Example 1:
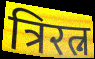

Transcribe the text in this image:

त्रिरत्न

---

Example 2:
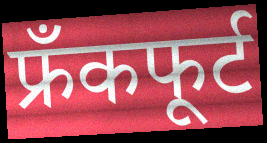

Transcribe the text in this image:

फ्रँकफूर्ट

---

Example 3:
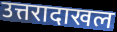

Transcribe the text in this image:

उत्तरादाखल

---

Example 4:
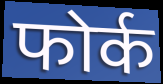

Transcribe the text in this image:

फोर्क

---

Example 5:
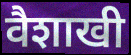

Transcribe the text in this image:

वैशाखी